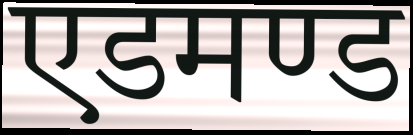
एडमण्ड